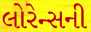
લોરેન્સની